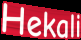
Hekali